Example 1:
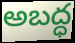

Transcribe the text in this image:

అబద్ధ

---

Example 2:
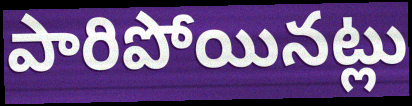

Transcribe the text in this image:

పారిపోయినట్లు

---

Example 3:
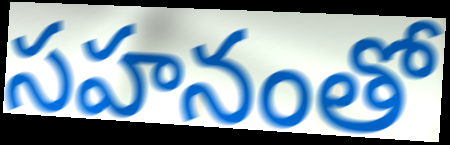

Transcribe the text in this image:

సహనంతో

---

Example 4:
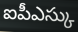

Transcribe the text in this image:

ఐపీఎస్కు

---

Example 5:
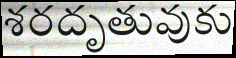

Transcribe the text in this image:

శరదృతువుకు